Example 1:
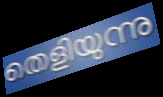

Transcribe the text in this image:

തെളിയുന്നു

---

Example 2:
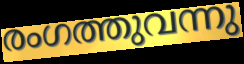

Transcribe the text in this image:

രംഗത്തുവന്നു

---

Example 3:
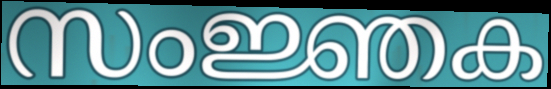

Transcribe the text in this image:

സംജ്ഞക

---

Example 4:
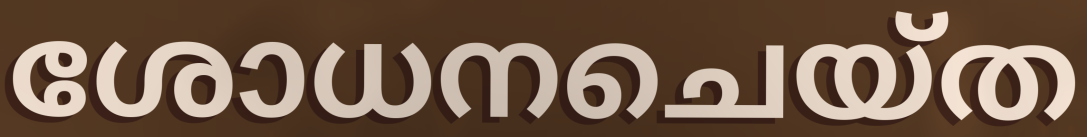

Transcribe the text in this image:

ശോധനചെയ്ത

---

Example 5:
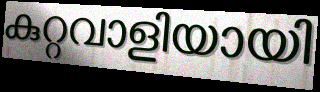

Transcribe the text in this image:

കുറ്റവാളിയായി